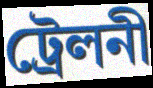
ট্রেলনী